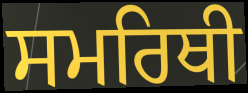
ਸਮਰਿਥੀ